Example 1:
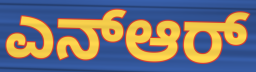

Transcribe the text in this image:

ಎನ್ಆರ್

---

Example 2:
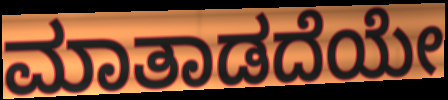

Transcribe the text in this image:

ಮಾತಾಡದೆಯೇ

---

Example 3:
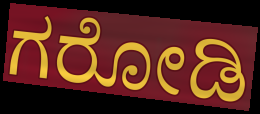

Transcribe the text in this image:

ಗರೋಡಿ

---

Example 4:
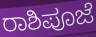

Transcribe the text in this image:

ರಾಶಿಪೂಜೆ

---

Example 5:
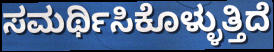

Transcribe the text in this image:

ಸಮರ್ಥಿಸಿಕೊಳ್ಳುತ್ತಿದೆ